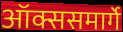
ऑक्ससमार्गे